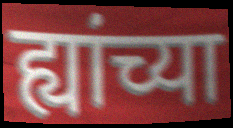
ह्यांच्या